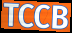
TCCB